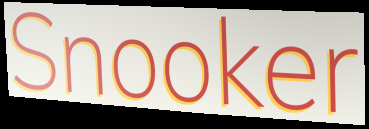
Snooker